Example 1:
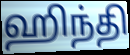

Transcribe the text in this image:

ஹிந்தி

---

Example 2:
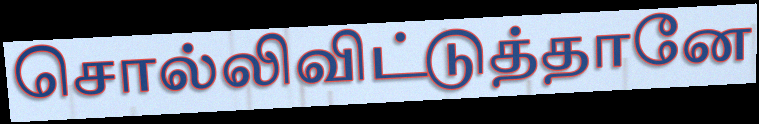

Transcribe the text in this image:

சொல்லிவிட்டுத்தானே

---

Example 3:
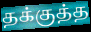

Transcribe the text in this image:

தக்குத்த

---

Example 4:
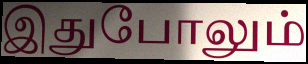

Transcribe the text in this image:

இதுபோலும்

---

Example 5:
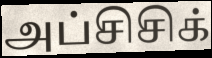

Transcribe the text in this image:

அப்சிசிக்